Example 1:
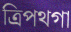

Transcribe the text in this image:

ত্রিপথগা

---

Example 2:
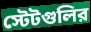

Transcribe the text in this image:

স্টেটগুলির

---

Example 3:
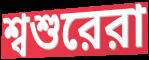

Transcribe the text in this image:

শ্বশুরেরা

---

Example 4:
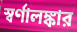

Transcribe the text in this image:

স্বর্ণালঙ্কার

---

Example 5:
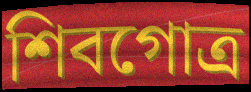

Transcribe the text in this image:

শিবগোত্র